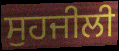
ਸੁਹਜੀਲੀ